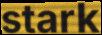
stark